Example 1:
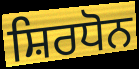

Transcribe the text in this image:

ਸ਼ਿਰਧੋਨ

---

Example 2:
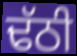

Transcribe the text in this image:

ਢੱਠੀ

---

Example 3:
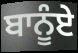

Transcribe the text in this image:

ਬਾਨੂੰਏ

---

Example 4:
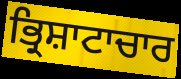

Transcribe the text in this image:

ਭ੍ਰਿਸ਼ਾਟਾਚਾਰ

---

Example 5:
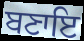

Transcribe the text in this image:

ਬਣਾਇ